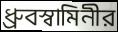
ধ্রুবস্বামিনীর